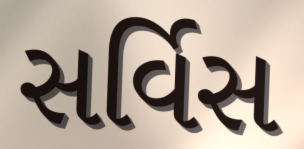
સર્વિસ